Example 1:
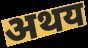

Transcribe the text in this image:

अथय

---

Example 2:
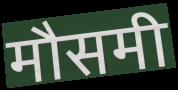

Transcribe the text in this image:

मौसमी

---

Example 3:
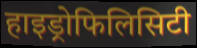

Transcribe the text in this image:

हाइड्रोफिलिसिटी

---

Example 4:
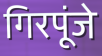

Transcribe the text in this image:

गिरपूंजे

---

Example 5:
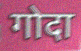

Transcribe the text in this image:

गोदा